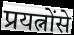
प्रयत्नोंसे